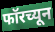
फॉरच्यून